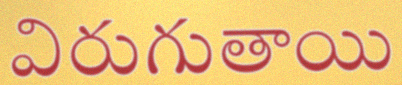
విరుగుతాయి